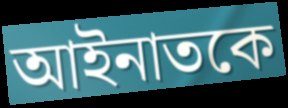
আইনাতকে